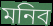
মনিব